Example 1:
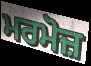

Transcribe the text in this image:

ਮਰਮੋਜ਼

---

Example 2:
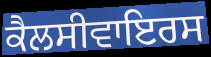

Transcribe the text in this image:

ਕੈਲਸੀਵਾਇਰਸ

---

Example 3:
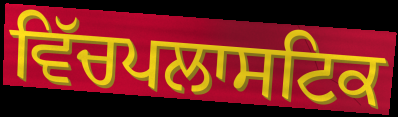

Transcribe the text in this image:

ਵਿੱਚਪਲਾਸਟਿਕ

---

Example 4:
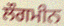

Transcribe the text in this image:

ਲੌਗਮੀਨ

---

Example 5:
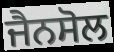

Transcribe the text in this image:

ਜੈਨਸੋਲ